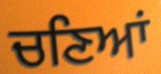
ਚਣਿਆਂ